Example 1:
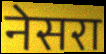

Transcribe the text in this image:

नेसरा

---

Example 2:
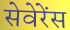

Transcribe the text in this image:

सेवेरेंस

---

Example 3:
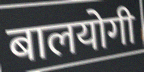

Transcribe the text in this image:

बालयोगी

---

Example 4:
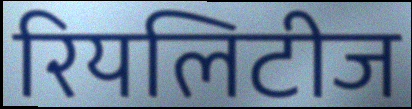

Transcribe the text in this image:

रियलिटीज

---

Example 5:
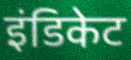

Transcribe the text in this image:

इंडिकेट